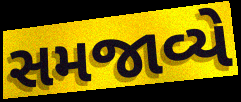
સમજાવ્યે